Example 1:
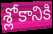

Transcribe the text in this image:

శ్లోకానికి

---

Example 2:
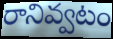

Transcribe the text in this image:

రానివ్వటం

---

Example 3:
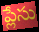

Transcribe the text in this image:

ప్లేసు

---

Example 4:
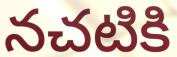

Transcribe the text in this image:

నచటికి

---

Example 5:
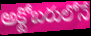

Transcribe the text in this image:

అక్టోబరులోనే